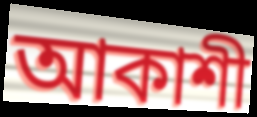
আকাশী